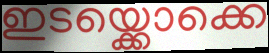
ഇടയ്ക്കൊക്കെ